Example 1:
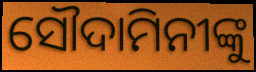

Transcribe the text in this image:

ସୌଦାମିନୀଙ୍କୁ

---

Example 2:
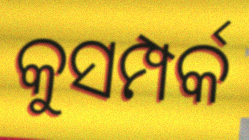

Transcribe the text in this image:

କୁସମ୍ପର୍କ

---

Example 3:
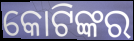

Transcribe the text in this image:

କୋଟିଙ୍କର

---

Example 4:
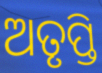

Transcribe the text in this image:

ଅତୃପ୍ତି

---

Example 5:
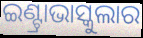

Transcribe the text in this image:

ଇଣ୍ଟ୍ରାଭାସ୍କୁଲାର